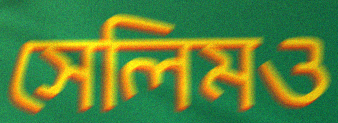
সেলিমও